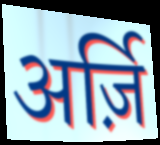
अर्ज़ि